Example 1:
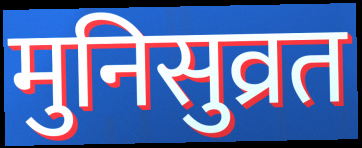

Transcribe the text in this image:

मुनिसुव्रत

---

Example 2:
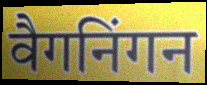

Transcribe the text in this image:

वैगनिंगन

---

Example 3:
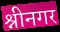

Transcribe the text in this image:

श्नीनगर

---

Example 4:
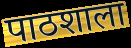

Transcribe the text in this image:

पाठशाला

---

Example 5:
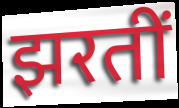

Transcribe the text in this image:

झरतीं